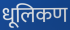
धूलिकण